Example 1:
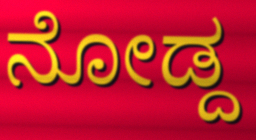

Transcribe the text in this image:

ನೋಡ್ದ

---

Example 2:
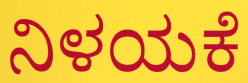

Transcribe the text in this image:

ನಿಳಯಕೆ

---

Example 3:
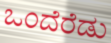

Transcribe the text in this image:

ಒಂದೆರೆಡು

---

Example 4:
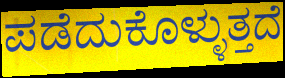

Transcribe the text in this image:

ಪಡೆದುಕೊಳ್ಳುತ್ತದೆ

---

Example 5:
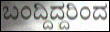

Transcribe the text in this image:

ಬಂದ್ದಿದ್ದರಿಂದ